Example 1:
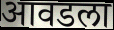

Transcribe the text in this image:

आवडला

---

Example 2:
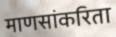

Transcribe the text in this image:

माणसांकरिता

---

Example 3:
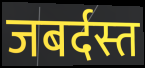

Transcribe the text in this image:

जबर्दस्त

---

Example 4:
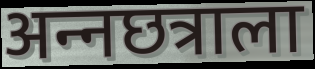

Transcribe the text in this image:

अन्नछत्राला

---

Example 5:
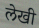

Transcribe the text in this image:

लेखी